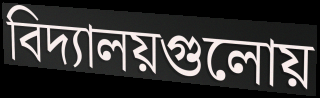
বিদ্যালয়গুলোয়